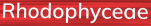
Rhodophyceae